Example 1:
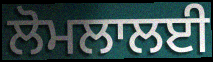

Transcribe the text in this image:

ਲੋਮਲਾਲਈ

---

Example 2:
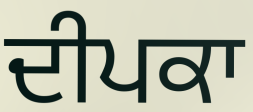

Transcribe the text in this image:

ਦੀਪਕਾ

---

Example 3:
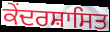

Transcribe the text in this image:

ਕੇਂਦਰਸ਼ਾਸਿਤ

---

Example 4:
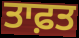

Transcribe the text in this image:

ਤਾਫ਼ਤ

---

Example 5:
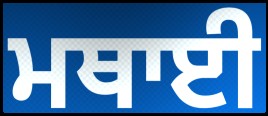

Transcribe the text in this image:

ਮਥਾਈ